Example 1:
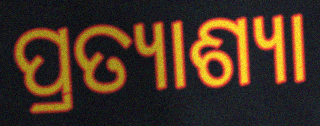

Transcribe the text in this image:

ପ୍ରତ୍ୟାଶ୍ୟା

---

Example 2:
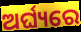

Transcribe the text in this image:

ଅର୍ଘ୍ୟରେ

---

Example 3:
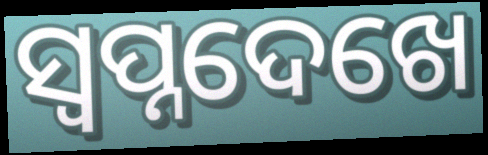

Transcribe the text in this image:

ସ୍ୱପ୍ନଦେଖେ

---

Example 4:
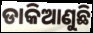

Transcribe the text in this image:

ଡାକିଆଣୁଛି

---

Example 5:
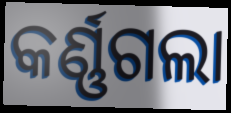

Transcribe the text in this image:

କର୍ଣ୍ଣଗଲା